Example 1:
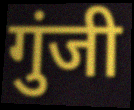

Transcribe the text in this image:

गुंजी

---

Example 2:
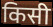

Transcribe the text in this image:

किसी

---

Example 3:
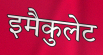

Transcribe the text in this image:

इमैकुलेट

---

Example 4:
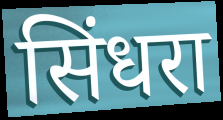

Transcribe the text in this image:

सिंधरा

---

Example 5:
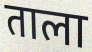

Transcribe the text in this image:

ताला